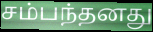
சம்பந்தனது